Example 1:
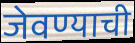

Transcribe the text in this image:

जेवण्याची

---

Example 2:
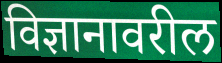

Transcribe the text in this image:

विज्ञानावरील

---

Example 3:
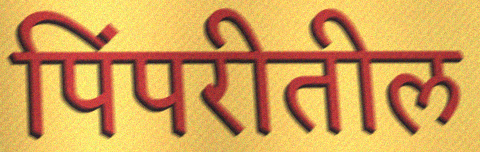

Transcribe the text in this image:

पिंपरीतील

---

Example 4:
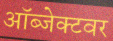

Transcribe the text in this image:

ऑब्जेक्टवर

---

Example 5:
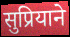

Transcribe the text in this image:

सुप्रियाने